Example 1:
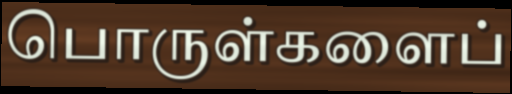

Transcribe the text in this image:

பொருள்களைப்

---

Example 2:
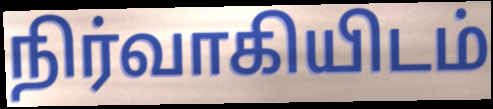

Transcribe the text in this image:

நிர்வாகியிடம்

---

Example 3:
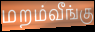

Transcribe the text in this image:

மறம்வீங்கு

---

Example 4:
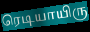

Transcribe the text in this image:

ரெடியாயிரு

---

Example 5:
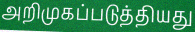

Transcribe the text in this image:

அறிமுகப்படுத்தியது